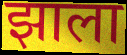
झाला